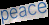
peace